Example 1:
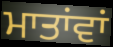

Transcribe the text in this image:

ਮਾਤਾਂਵਾਂ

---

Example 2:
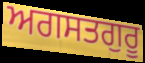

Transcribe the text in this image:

ਅਗਸਤਗੁਰੂ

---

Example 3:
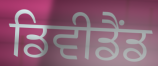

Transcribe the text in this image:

ਡਿਵੀਡੈਂਡ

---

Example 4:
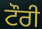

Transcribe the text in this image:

ਟੌਰੀ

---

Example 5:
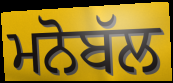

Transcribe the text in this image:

ਮਨੋਬੱਲ